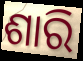
ଶାରି